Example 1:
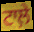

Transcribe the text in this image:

ਟਾਲ਼ੇ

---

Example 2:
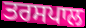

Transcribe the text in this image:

ਤਰਸਪਾਲ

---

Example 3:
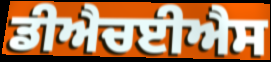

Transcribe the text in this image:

ਡੀਐਚਈਐਸ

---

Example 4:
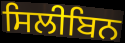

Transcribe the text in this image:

ਸਿਲੀਬਿਨ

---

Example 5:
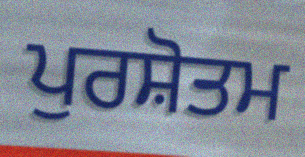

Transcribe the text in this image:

ਪੁਰਸ਼ੋਤਮ